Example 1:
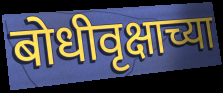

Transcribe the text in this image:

बोधीवृक्षाच्या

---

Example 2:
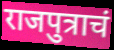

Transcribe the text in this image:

राजपुत्राचं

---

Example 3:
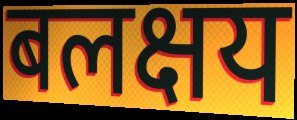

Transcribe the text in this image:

बलक्षय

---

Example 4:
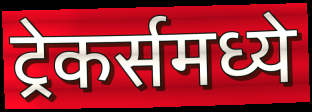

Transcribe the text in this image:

ट्रेकर्समध्ये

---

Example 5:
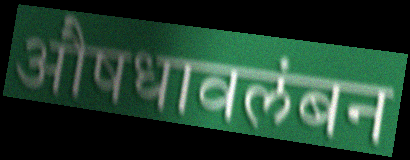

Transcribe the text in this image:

औषधावलंबन